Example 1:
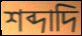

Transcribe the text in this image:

শব্দাদি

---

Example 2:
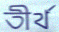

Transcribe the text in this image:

তীর্থ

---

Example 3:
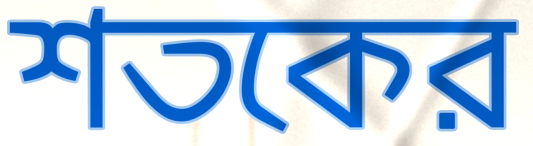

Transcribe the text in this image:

শতকের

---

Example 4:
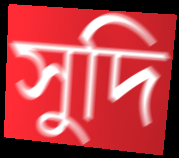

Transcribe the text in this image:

সুদি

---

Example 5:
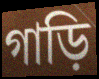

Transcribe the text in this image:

গাড়ি